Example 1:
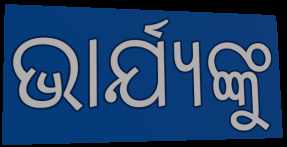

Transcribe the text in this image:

ଭାର୍ଯ୍ୟଙ୍କୁ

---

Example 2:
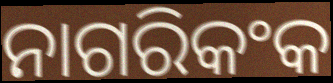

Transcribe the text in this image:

ନାଗରିକଂକ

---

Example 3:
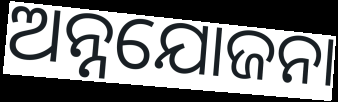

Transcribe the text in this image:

ଅନ୍ନଯୋଜନା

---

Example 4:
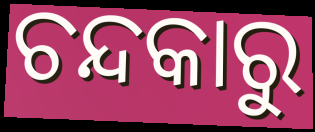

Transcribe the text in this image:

ଚନ୍ଦକାରୁ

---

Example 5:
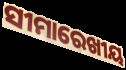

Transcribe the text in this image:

ସୀମାରେଖୀୟ